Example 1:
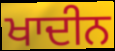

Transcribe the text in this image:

ਖਾਦੀਨ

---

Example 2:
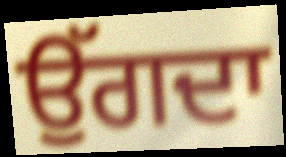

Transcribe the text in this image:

ਉੱਗਦਾ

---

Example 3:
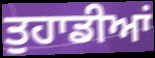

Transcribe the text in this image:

ਤੁਹਾਡੀਆਂ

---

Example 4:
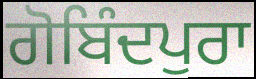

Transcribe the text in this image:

ਗੋਬਿੰਦਪੁਰਾ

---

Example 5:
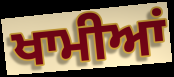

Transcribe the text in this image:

ਖਾਮੀਆਂ